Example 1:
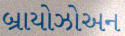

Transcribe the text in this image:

બ્રાયોઝોઅન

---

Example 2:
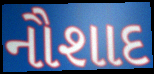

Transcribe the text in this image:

નૌશાદ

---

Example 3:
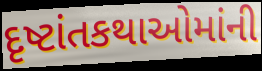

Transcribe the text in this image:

દૃષ્ટાંતકથાઓમાંની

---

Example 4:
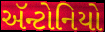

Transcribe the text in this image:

ઍન્ટોનિયો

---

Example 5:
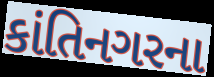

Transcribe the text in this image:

કાંતિનગરના